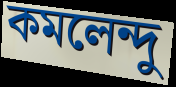
কমলেন্দু